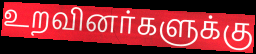
உறவினர்களுக்கு